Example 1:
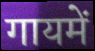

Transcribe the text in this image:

गायमें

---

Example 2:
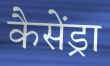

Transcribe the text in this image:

कैसेंड्रा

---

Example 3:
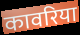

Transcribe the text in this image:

कावरिया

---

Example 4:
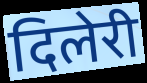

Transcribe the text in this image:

दिलेरी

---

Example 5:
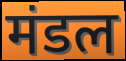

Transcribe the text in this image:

मंडल